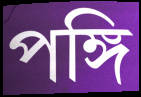
পঙ্গি